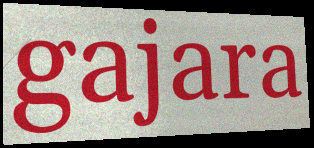
gajara